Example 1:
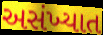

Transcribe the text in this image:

અસંખ્યાત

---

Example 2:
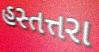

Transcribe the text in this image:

હસ્તત્તરા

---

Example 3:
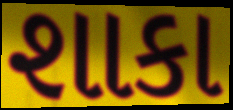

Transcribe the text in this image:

શાકા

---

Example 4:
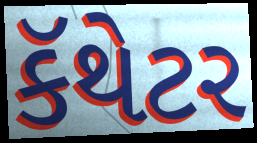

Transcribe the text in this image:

કૅથેટર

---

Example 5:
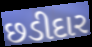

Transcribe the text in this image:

છડીદાર